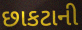
છાકટાની